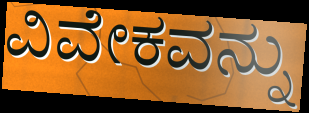
ವಿವೇಕವನ್ನು